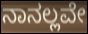
ನಾನಲ್ಲವೇ